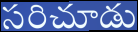
సరిచూడు